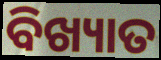
ବିଖ୍ୟାତ